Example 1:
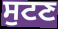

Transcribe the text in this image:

ਸੁਟਣ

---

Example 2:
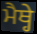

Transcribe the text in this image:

ਮੈਥ੍ਹੇ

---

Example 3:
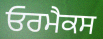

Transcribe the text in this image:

ਓਰਮੈਕਸ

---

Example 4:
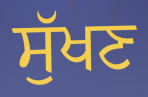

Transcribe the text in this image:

ਸੁੱਖਣ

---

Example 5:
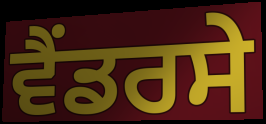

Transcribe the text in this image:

ਵੈਂਡਰਸੇ